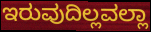
ಇರುವುದಿಲ್ಲವಲ್ಲಾ